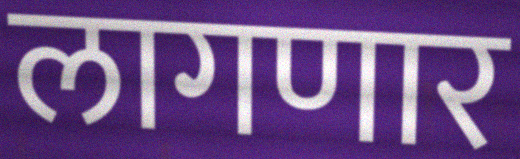
लागणार